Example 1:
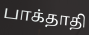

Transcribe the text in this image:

பாக்தாதி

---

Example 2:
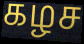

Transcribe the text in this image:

கழச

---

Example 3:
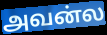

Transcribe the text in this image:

அவன்ல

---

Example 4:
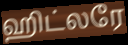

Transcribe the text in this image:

ஹிட்லரே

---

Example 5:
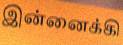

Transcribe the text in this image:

இன்னைக்கி